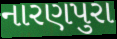
નારણપુરા